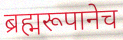
ब्रह्मरूपानेच